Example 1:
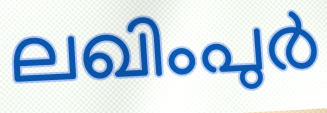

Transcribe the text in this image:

ലഖിംപുർ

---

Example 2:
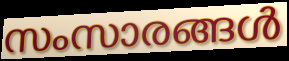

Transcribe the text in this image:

സംസാരങ്ങൾ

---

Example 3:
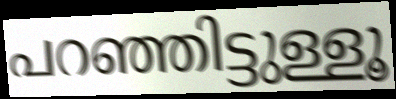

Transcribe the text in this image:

പറഞ്ഞിട്ടുള്ളൂ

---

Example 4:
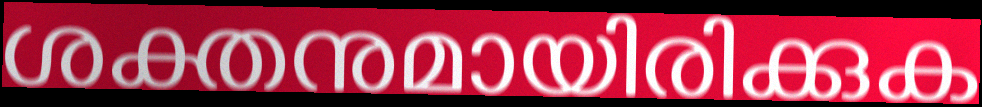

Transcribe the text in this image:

ശക്തനുമായിരിക്കുക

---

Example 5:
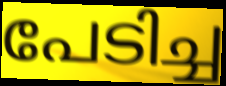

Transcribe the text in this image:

പേടിച്ച